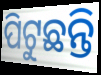
ପିଟୁଛନ୍ତି